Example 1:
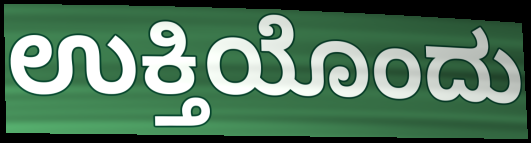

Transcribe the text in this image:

ಉಕ್ತಿಯೊಂದು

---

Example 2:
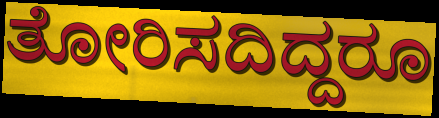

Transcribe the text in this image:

ತೋರಿಸದಿದ್ದರೂ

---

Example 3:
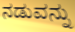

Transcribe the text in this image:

ನಡುವನ್ನು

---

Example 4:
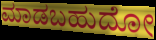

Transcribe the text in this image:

ಮಾಡಬಹುದೋ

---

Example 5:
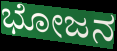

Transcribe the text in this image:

ಭೋಜನ